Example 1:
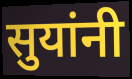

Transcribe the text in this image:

सुयांनी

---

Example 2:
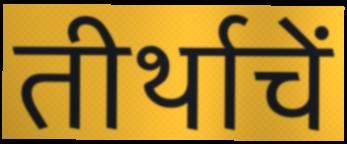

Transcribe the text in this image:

तीर्थाचें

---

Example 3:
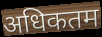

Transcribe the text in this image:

अधिकतम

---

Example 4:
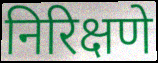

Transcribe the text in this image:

निरिक्षणे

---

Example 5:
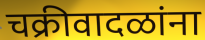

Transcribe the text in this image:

चक्रीवादळांना